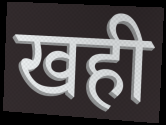
खही